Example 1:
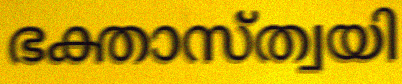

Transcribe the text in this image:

ഭക്താസ്ത്വയി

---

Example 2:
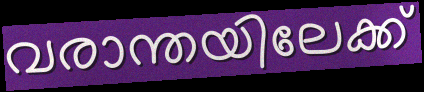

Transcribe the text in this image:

വരാന്തയിലേക്ക്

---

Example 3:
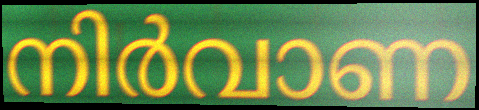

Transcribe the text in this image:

നിർവാണ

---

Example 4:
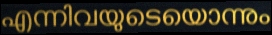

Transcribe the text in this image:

എന്നിവയുടെയൊന്നും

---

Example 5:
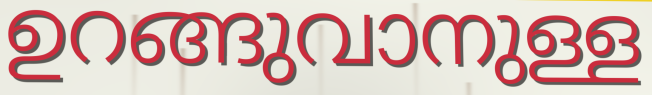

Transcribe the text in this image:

ഉറങ്ങുവാനുള്ള